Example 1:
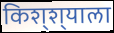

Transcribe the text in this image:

किश्श्याला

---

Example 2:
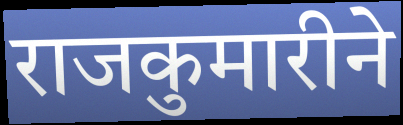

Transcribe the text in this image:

राजकुमारीने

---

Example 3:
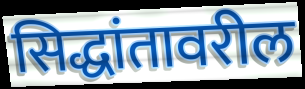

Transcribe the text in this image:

सिद्धांतावरील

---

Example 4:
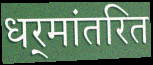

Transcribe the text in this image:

धर्मांतरित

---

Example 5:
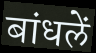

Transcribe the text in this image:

बांधलें